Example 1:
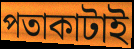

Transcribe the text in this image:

পতাকাটাই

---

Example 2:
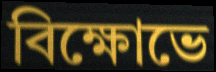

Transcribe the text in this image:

বিক্ষোভে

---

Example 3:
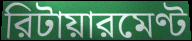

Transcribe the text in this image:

রিটায়ারমেণ্ট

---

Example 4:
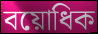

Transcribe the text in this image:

বয়োধিক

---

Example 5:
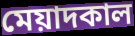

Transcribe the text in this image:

মেয়াদকাল